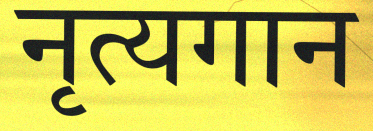
नृत्यगान